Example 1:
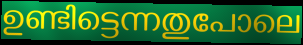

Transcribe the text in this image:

ഉണ്ടിട്ടെന്നതുപോലെ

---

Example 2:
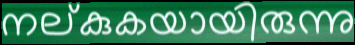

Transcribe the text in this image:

നല്കുകയായിരുന്നു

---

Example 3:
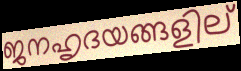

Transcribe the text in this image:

ജനഹൃദയങ്ങളില്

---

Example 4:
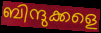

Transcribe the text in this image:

ബിന്ദുക്കളെ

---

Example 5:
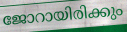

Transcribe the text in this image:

ജോറായിരിക്കും